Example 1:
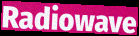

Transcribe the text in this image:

Radiowave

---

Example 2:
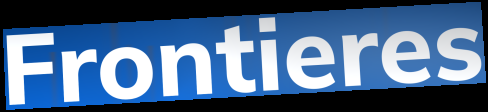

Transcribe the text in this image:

Frontieres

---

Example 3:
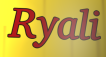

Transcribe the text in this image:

Ryali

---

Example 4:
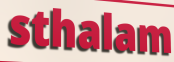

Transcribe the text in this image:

sthalam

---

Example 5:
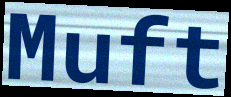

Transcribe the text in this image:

Muft